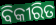
ବିକୀରିତ